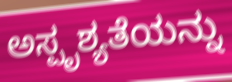
ಅಸ್ಪೃಶ್ಯತೆಯನ್ನು